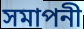
সমাপনী